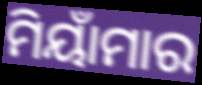
ମିୟାଁମାର